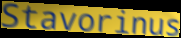
Stavorinus